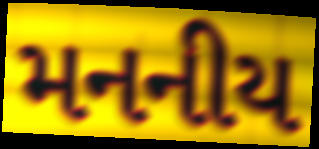
મનનીય